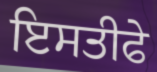
ਇਸਤੀਫੇ